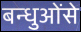
बन्धुओंसे